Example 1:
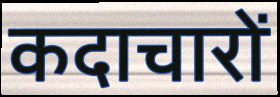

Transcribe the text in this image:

कदाचारों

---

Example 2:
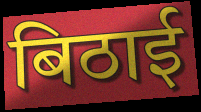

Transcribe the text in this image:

बिठाई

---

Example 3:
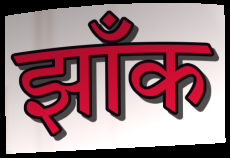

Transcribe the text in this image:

झाँक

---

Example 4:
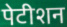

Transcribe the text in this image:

पेटीशन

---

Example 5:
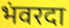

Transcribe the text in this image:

भंवरदा